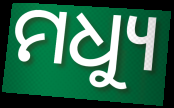
ମଧ୍ୟୁ